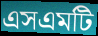
এসএমটি